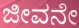
ಜೀವನೇ